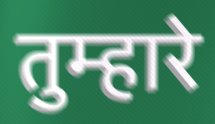
तुम्हारे